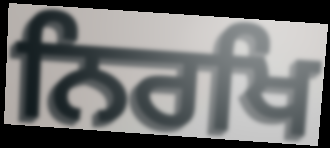
ਨਿਰਖਿ